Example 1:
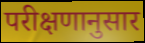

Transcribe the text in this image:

परीक्षणानुसार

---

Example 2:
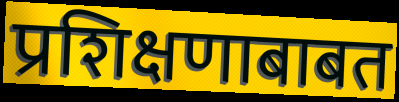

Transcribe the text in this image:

प्रशिक्षणाबाबत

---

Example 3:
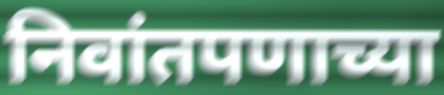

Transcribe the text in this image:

निवांतपणाच्या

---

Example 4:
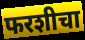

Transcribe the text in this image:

फरशीचा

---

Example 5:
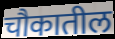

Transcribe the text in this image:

चौकातील